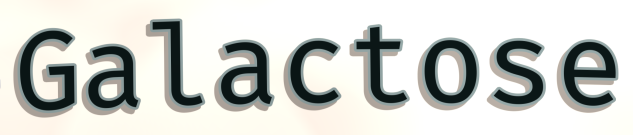
Galactose